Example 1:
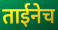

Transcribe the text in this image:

ताईनेच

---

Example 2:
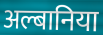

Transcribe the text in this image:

अल्बानिया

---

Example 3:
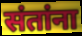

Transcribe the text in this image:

संतांना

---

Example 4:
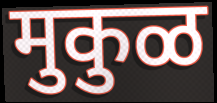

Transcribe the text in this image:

मुकुळ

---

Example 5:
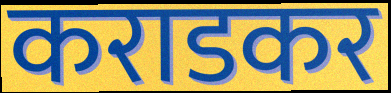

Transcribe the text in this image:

कराडकर